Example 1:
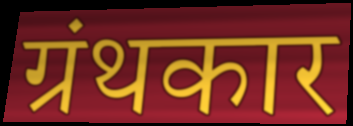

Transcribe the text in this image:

ग्रंथकार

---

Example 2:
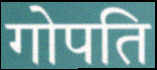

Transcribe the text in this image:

गोपति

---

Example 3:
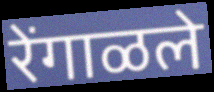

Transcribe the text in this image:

रेंगाळले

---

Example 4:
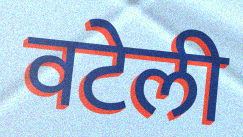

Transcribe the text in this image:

वटेली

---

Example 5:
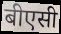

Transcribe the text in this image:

बीएसी